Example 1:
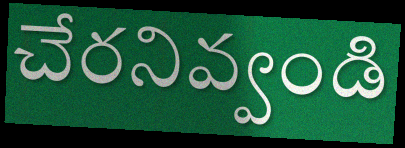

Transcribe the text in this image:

చేరనివ్వండి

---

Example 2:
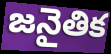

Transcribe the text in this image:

జనైతిక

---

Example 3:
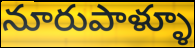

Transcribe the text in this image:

నూరుపాళ్ళూ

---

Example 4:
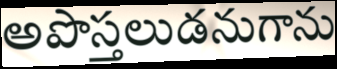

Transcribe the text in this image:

అపొస్తలుడనుగాను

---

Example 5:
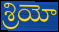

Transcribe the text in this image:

శ్రియో